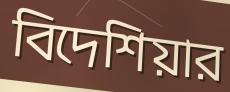
বিদেশিয়ার